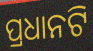
ପ୍ରଧାନଟି